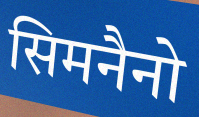
सिमनैनो